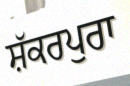
ਸ਼ੱਕਰਪੁਰਾ